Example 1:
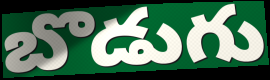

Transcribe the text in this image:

బొడుగు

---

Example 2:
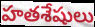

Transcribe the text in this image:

హతశేషులు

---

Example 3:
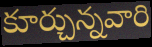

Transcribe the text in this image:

కూర్చున్నవారి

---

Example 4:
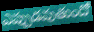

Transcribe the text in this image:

ఎప్పుడవుతుందో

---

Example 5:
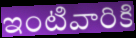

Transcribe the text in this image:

ఇంటివారికి